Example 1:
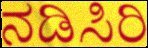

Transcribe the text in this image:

ನಡಿಸಿರಿ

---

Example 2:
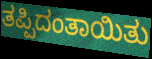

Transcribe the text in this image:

ತಪ್ಪಿದಂತಾಯಿತು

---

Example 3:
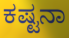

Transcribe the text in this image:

ಕಷ್ಟನಾ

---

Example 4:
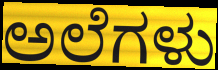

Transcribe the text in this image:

ಅಲೆಗಳು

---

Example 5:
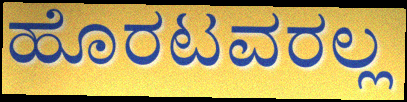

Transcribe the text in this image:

ಹೊರಟವರಲ್ಲ